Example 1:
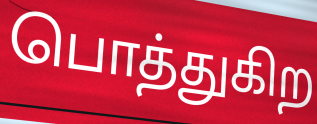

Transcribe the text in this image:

பொத்துகிற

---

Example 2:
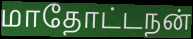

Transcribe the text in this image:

மாதோட்டநன்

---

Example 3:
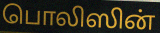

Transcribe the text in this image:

பொலிஸின்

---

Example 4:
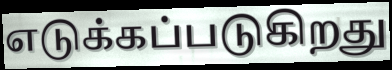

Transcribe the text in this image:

எடுக்கப்படுகிறது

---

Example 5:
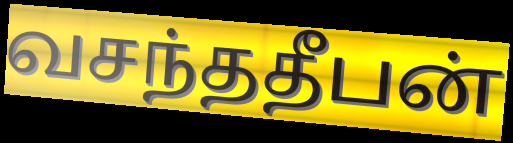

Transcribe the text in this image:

வசந்ததீபன்